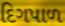
દિગપાળ